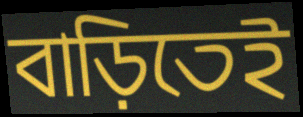
বাড়িতেই